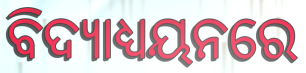
ବିଦ୍ୟାଧ୍ୟୟନରେ